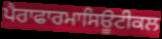
ਪੈਰਾਫਾਰਮਾਸਿਊਟੀਕਲ